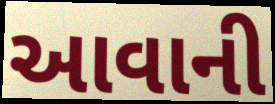
આવાની